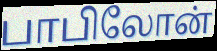
பாபிலோன்